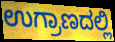
ಉಗ್ರಾಣದಲ್ಲಿ